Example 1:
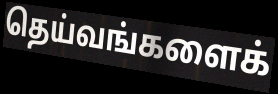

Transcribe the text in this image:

தெய்வங்களைக்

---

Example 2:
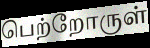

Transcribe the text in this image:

பெற்றோருள்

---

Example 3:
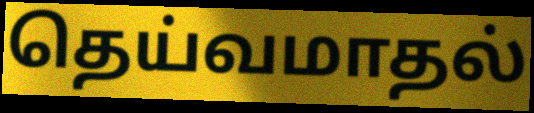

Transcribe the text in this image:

தெய்வமாதல்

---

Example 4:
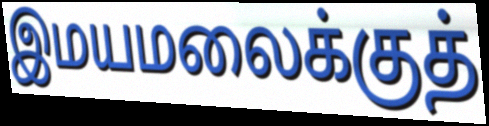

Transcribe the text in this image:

இமயமலைக்குத்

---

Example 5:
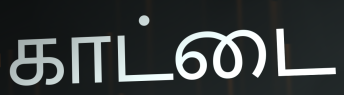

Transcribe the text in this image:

காட்டை